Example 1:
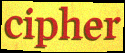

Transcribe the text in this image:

cipher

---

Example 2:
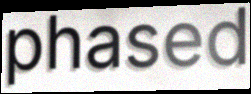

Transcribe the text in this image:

phased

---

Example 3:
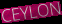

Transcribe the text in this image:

CEYLON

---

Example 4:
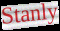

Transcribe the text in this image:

Stanly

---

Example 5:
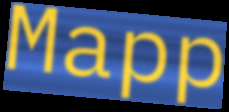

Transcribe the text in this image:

Mapp